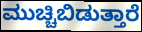
ಮುಚ್ಚಿಬಿಡುತ್ತಾರೆ